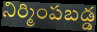
నిర్మింపబడ్డ